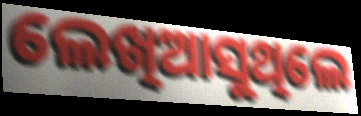
ଲେଖିଆସୁଥିଲେ